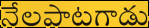
నేలపాటగాడు